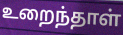
உறைந்தாள்